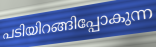
പടിയിറങ്ങിപ്പോകുന്ന